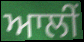
ਆਲੀਂ